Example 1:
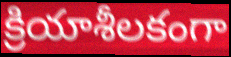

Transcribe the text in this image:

క్రియాశీలకంగా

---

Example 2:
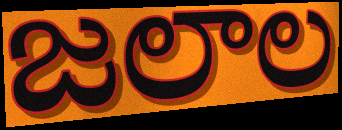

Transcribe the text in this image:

జలాల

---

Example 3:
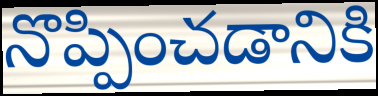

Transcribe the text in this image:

నొప్పించడానికి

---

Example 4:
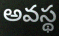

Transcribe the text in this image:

అవస్థ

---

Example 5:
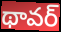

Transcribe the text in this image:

థావర్